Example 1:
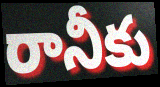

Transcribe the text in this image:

రానీకు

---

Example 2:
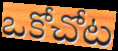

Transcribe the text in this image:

ఒకోచోట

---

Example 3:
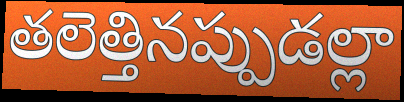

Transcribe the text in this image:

తలెత్తినప్పుడల్లా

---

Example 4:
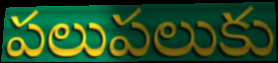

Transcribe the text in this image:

పలుపలుకు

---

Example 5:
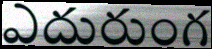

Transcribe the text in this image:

ఎదురుంగ